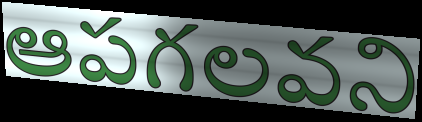
ఆపగలవని